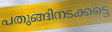
പതുങ്ങിനടക്കട്ടെ